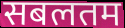
सबलतम